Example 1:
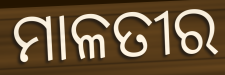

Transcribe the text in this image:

ମାଳତୀର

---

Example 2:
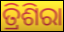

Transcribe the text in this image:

ତ୍ରିଶିରା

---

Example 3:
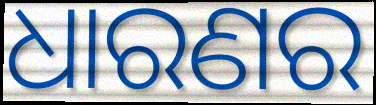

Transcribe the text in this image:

ଧାରଣର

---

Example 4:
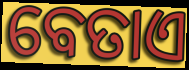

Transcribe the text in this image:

ବେତାଏ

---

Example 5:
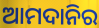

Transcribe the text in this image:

ଆମଦାନିର